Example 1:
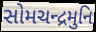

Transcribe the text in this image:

સોમચન્દ્રમુનિ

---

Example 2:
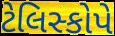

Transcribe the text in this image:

ટેલિસ્કોપે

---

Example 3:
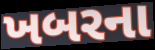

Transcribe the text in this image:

ખબરના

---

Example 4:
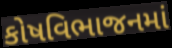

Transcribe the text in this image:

કોષવિભાજનમાં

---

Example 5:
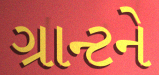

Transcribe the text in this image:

ગ્રાન્ટને